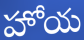
హోయ